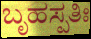
ಬೃಹಸ್ಪತಿಃ